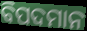
ବିପଦମାନ